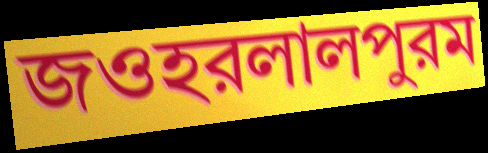
জওহরলালপুরম